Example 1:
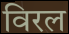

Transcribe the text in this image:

विरल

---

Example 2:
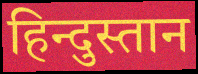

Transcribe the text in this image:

हिन्‍दुस्‍तान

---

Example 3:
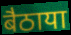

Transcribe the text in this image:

बैठाया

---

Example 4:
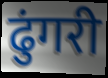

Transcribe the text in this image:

ढुंगरी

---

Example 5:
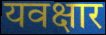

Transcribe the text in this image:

यवक्षार